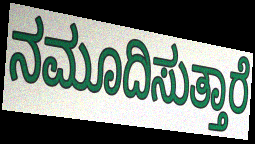
ನಮೂದಿಸುತ್ತಾರೆ